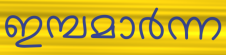
ഇമ്പമാർന്ന